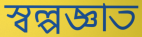
স্বল্পজ্ঞাত